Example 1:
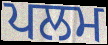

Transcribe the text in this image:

ਪਲਮ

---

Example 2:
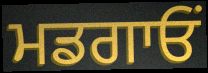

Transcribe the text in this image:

ਮਡਗਾਓਂ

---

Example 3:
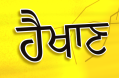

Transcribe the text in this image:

ਹੈਖਾਣ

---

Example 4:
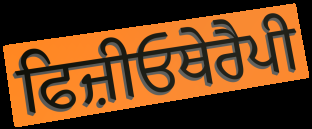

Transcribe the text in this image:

ਫਿਜ਼ੀਓਥੇਰੈਪੀ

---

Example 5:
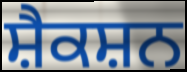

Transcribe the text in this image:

ਸ਼ੈਕਸ਼ਨ